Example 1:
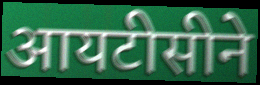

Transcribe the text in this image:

आयटीसीने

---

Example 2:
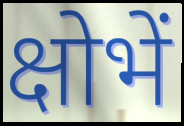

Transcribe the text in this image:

क्षोभें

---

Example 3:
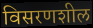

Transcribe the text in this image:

विसरणशील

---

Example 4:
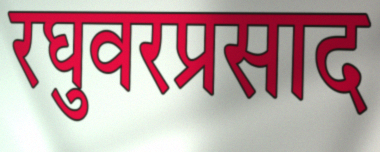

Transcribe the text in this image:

रघुवरप्रसाद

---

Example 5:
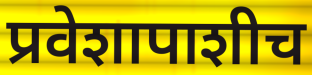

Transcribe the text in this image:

प्रवेशापाशीच